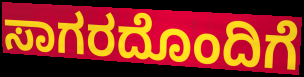
ಸಾಗರದೊಂದಿಗೆ